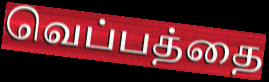
வெப்பத்தை